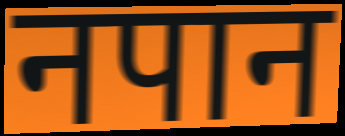
नपान